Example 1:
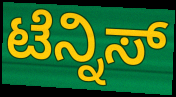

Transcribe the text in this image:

ಟೆನ್ನಿಸ್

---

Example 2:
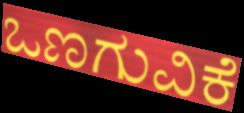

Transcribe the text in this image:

ಒಣಗುವಿಕೆ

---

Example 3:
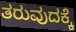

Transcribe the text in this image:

ತರುವುದಕ್ಕೆ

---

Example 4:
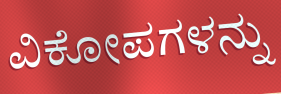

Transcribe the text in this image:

ವಿಕೋಪಗಳನ್ನು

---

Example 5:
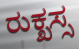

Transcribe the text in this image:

ರುಕ್ಖಸ್ಸ